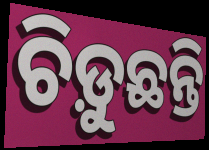
ଚିଡ଼ୁଛନ୍ତି